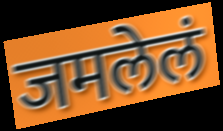
जमलेलं